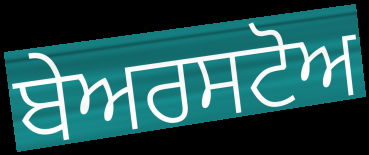
ਬੇਅਰਸਟੋਅ